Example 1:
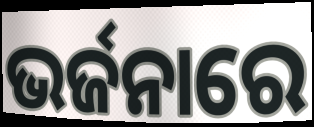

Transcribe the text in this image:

ଭର୍ଜନାରେ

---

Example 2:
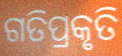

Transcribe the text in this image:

ଗତିପ୍ରକୃତି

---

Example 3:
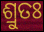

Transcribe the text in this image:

ଶ୍ରୁତଃ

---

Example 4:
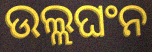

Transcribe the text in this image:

ଉଲ୍ଲଘଂନ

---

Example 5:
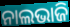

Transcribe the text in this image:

ନାଲଭାଜି